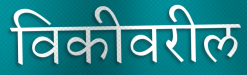
विकीवरील